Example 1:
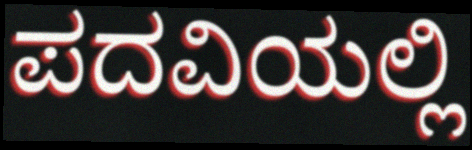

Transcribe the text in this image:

ಪದವಿಯಲ್ಲಿ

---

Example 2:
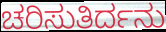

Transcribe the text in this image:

ಚರಿಸುತಿರ್ದನು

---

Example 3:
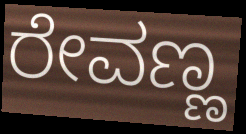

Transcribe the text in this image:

ರೇವಣ್ಣ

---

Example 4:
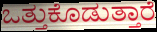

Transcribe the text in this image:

ಒತ್ತುಕೊಡುತ್ತಾರೆ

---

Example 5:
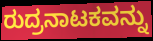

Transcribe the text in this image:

ರುದ್ರನಾಟಕವನ್ನು